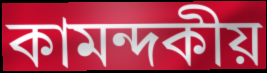
কামন্দকীয়